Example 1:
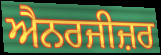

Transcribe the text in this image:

ਐਨਰਜੀਜ਼ਰ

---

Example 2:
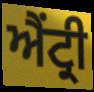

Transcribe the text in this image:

ਐਂਟ੍ਰੀ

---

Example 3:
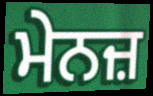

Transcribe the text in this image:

ਮੇਨਜ਼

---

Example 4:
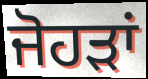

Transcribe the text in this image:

ਜੋਹੜਾਂ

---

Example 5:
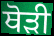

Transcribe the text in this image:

ਥੋੜੀ